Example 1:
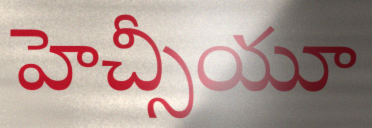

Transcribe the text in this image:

హెచ్సీయూ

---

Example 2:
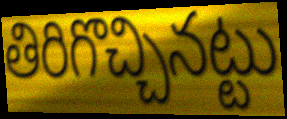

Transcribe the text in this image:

తిరిగొచ్చినట్టు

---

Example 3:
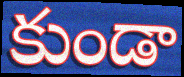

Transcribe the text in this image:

కుండా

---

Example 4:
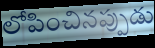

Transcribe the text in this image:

లోపించినప్పుడు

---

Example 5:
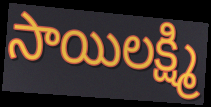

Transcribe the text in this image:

సాయిలక్ష్మి